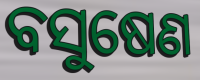
ବସୁଷେଣ